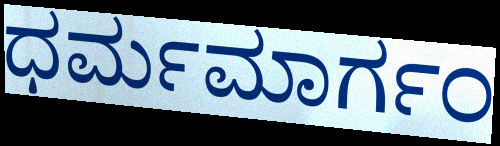
ಧರ್ಮಮಾರ್ಗಂ